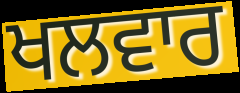
ਖਲਵਾਰ